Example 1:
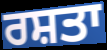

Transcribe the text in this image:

ਰਸ਼ਤਾ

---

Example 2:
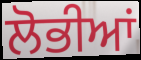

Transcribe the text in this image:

ਲੋਭੀਆਂ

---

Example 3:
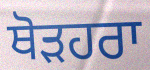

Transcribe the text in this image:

ਥੋੜਹਰਾ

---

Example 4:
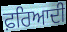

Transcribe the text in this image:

ਫ਼ਰਿਆਦੀ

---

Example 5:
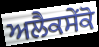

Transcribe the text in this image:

ਅਲੈਕਸੇਂਕੋ